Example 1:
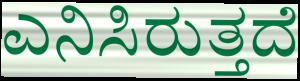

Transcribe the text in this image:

ಎನಿಸಿರುತ್ತದೆ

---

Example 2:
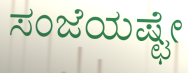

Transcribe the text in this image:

ಸಂಜೆಯಷ್ಟೇ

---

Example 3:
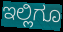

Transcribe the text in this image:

ಇಲ್ಲಿಗೂ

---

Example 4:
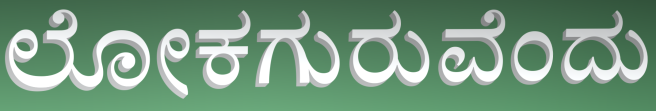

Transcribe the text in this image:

ಲೋಕಗುರುವೆಂದು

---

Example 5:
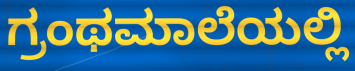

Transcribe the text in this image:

ಗ್ರಂಥಮಾಲೆಯಲ್ಲಿ